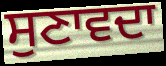
ਸੁਣਾਵਦਾ